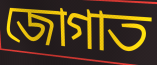
জোগাত